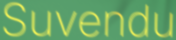
Suvendu